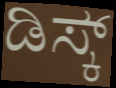
ಡಿಸ್ಕ್